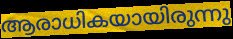
ആരാധികയായിരുന്നു